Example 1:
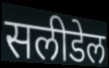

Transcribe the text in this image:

सलीडेल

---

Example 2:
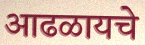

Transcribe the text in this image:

आढळायचे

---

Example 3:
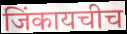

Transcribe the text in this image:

जिंकायचीच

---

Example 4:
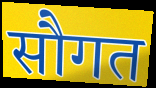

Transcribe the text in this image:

सौगत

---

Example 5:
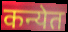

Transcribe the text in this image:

कन्येत